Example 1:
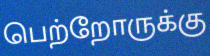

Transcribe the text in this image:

பெற்றோருக்கு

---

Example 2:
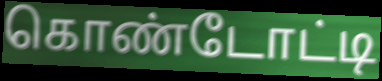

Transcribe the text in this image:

கொண்டோட்டி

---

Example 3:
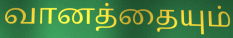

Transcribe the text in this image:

வானத்தையும்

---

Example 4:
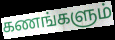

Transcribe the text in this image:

கணங்களும்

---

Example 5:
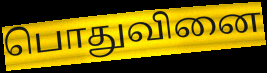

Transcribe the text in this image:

பொதுவினை